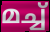
മച്ച്